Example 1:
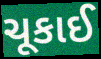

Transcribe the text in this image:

ચૂકાઈ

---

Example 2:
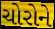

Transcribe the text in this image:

ચોરોને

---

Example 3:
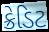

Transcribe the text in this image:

ક્રેડિટ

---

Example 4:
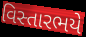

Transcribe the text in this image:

વિસ્તારભયે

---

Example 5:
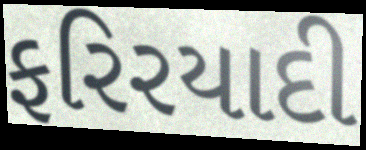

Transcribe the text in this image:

ફરિરયાદી